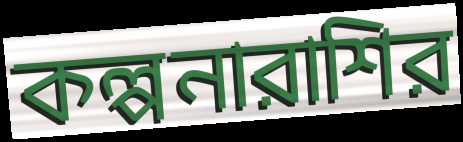
কল্পনারাশির